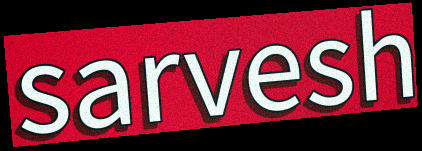
sarvesh